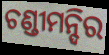
ଚଣ୍ଡୀମନ୍ଦିର